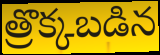
త్రొక్కబడిన